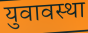
युवावस्था